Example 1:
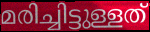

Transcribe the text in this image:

മരിച്ചിട്ടുള്ളത്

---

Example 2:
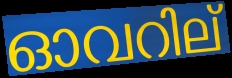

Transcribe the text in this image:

ഓവറില്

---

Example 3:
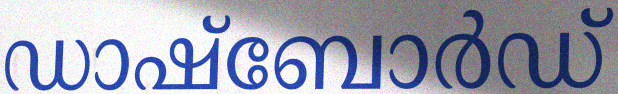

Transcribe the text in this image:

ഡാഷ്ബോർഡ്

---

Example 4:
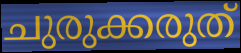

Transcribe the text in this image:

ചുരുക്കരുത്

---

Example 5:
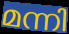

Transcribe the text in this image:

മന്നി